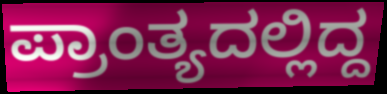
ಪ್ರಾಂತ್ಯದಲ್ಲಿದ್ದ